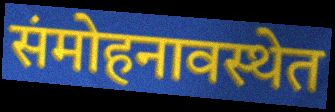
संमोहनावस्थेत